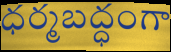
ధర్మబద్ధంగా